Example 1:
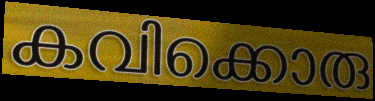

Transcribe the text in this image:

കവിക്കൊരു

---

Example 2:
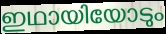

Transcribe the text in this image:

ഇഥായിയോടും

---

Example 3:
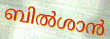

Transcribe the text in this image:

ബിൽശാൻ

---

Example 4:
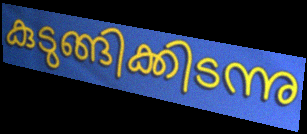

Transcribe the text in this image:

കുടുങ്ങിക്കിടന്നു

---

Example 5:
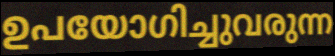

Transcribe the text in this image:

ഉപയോഗിച്ചുവരുന്ന